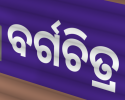
ବର୍ଗଚିତ୍ର